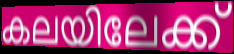
കലയിലേക്ക്